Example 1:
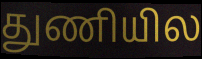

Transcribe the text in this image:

துணியில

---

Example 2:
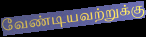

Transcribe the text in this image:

வேண்டியவற்றுக்கு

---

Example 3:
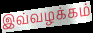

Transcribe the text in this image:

இவ்வழக்கம்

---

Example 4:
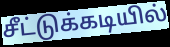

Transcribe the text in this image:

சீட்டுக்கடியில்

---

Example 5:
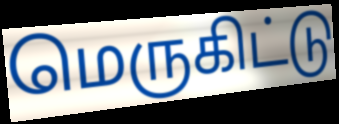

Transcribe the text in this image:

மெருகிட்டு